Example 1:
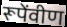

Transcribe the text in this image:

रूपेंवीण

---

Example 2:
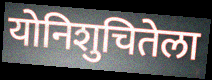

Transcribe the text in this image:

योनिशुचितेला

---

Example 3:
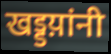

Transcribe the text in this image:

खड्डय़ांनी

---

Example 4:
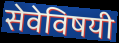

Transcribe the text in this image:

सेवेविषयी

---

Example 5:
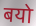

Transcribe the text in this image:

बयो